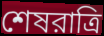
শেষরাত্রি